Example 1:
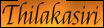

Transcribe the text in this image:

Thilakasiri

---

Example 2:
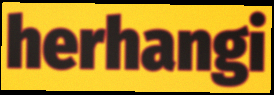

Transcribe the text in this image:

herhangi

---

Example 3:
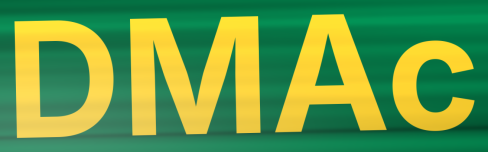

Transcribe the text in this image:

DMAc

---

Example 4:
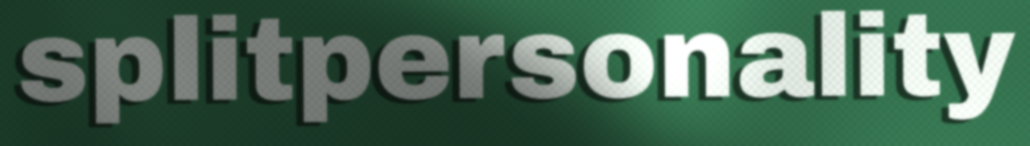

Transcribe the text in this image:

splitpersonality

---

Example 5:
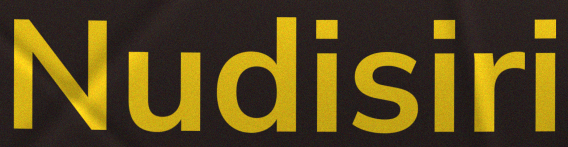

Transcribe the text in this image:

Nudisiri